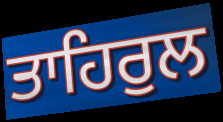
ਤਾਹਿਰੁਲ